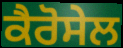
ਕੈਰੋਸੇਲ